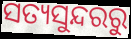
ସତ୍ୟସୁନ୍ଦରରୁ